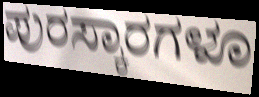
ಪುರಸ್ಕಾರಗಳೂ